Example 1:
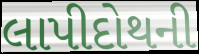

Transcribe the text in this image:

લાપીદોથની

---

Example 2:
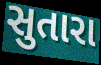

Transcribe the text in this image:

સુતારા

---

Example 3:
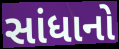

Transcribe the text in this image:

સાંધાનો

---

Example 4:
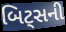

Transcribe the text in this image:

બિટ્સની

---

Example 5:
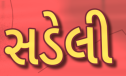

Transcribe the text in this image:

સડેલી